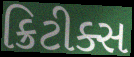
ક્રિટીક્સ